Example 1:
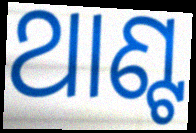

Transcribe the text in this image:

ଥାଣ୍ଟ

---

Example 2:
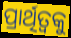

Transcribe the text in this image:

ପ୍ରାର୍ଥିତ୍ୱକୁ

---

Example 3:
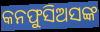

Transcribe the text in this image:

କନଫୁସିଅସଙ୍କ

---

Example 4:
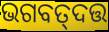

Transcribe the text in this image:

ଭଗବତ୍‌ଦତ୍ତ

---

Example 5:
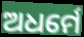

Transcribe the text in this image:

ଅଧର୍ମେ